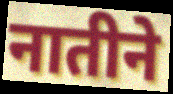
नातीने